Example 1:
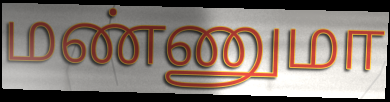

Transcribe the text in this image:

மண்ணுமா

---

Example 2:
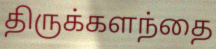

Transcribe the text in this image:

திருக்களந்தை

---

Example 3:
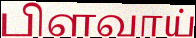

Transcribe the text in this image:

பிளவாய்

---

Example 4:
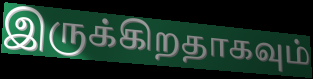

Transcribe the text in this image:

இருக்கிறதாகவும்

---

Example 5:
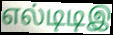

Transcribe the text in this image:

எல்டிடிஇ